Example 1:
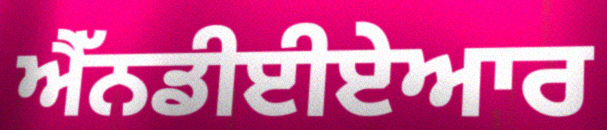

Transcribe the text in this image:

ਐੱਨਡੀਈਏਆਰ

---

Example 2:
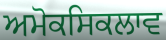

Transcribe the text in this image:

ਅਮੋਕਸਿਕਲਾਵ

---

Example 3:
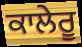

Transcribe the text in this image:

ਕਾਲੇਰੂ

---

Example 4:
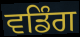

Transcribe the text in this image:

ਵਡਿੰਗ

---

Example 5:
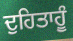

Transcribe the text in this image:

ਦੁਹਿਤਾਹੂੰ